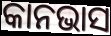
କାନଭାସ